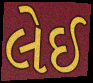
લેઈ